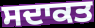
ਸਦਾਕਤ